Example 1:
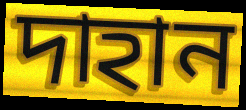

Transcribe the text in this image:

দাহান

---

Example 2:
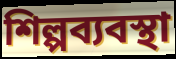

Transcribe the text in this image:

শিল্পব্যবস্থা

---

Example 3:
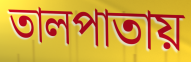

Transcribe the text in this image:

তালপাতায়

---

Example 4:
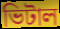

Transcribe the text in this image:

ভিটাল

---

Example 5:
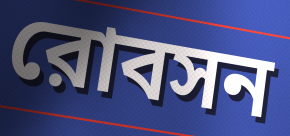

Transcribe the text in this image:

রোবসন